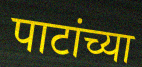
पाटांच्या